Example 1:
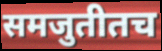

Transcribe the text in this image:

समजुतीतच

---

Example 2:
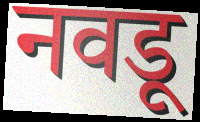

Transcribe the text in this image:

नवडू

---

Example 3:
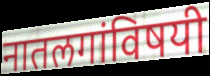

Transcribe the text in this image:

नातलगांविषयी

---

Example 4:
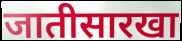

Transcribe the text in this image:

जातीसारखा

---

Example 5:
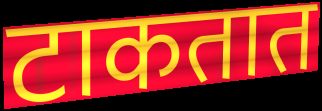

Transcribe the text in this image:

टाकतात